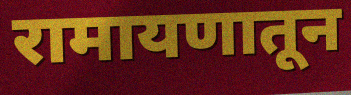
रामायणातून